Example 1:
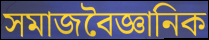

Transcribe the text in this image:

সমাজবৈজ্ঞানিক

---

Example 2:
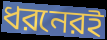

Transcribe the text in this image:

ধরনেরই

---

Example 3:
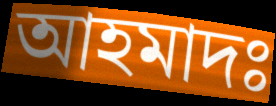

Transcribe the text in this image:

আহমাদঃ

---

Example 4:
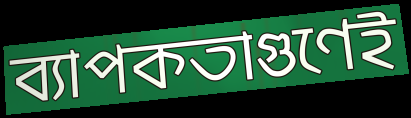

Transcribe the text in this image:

ব্যাপকতাগুণেই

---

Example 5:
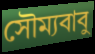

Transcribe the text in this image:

সৌম্যবাবু